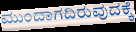
ಮುಂದಾಗದಿರುವುದಕ್ಕೆ